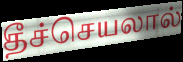
தீச்செயலால்